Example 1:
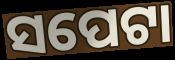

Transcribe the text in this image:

ସପେଟା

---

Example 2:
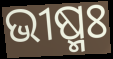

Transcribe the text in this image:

ଭୀଷ୍ମଃ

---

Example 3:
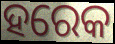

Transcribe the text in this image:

ହରେକ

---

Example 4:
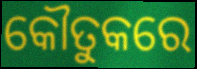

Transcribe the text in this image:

କୌତୁକରେ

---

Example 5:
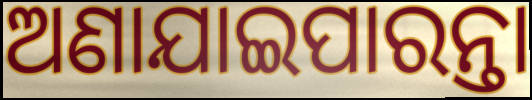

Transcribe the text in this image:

ଅଣାଯାଇପାରନ୍ତା